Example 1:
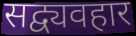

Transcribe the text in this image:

सद्व्यवहार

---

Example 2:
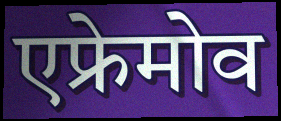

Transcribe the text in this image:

एफ्रेमोव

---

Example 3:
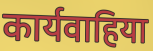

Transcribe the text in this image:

कार्यवाहिया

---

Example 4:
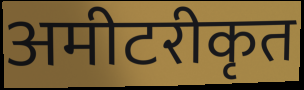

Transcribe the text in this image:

अमीटरीकृत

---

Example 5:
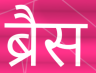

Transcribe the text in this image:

ब्रैस